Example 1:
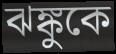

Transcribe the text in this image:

ঝঙ্কুকে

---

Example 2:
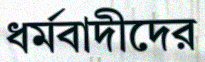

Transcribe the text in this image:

ধর্মবাদীদের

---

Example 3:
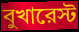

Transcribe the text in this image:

বুখারেস্ট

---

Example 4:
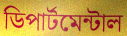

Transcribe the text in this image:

ডিপার্টমেন্টাল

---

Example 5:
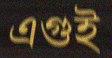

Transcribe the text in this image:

এগুই